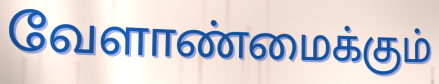
வேளாண்மைக்கும்